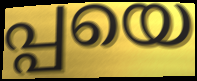
പ്പയെ